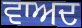
ਵਾਅਦ